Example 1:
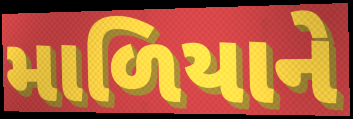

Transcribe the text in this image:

માળિયાને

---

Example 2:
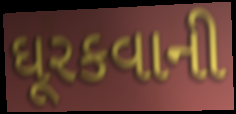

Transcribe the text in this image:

ઘૂરકવાની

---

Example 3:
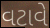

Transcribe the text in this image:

વટાવે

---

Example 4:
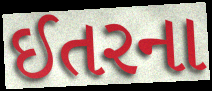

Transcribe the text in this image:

ઈતરના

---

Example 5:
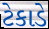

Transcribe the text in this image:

ટેકાડે